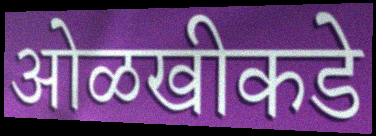
ओळखीकडे